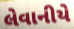
લેવાનીયે